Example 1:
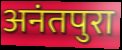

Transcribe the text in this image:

अनंतपुरा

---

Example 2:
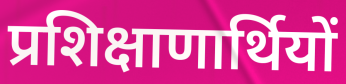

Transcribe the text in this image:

प्रशिक्षाणार्थियों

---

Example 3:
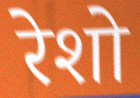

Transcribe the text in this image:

रेशो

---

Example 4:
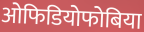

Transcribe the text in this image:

ओफिडियोफोबिया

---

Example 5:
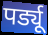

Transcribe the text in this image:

पर्ड्यू